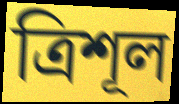
ত্ৰিশূল